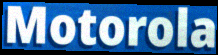
Motorola